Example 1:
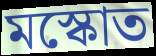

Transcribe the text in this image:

মস্কোত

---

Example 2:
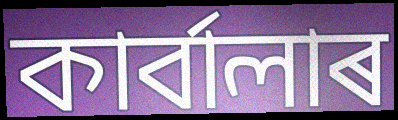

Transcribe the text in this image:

কাৰ্বালাৰ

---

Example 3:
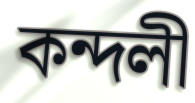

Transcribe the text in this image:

কন্দলী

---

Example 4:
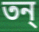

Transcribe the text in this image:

তন্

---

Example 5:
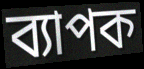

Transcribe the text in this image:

ব্যাপক